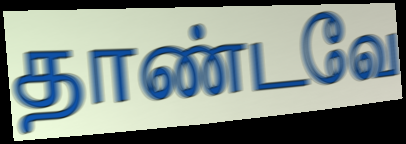
தாண்டவே